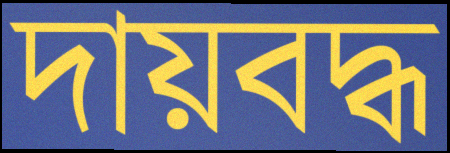
দায়বদ্ধ